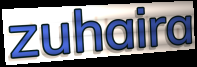
zuhaira